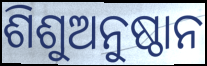
ଶିଶୁଅନୁଷ୍ଠାନ